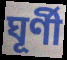
ঘূৰ্ণী